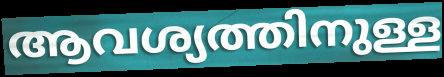
ആവശ്യത്തിനുള്ള